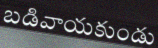
బడివాయకుండు